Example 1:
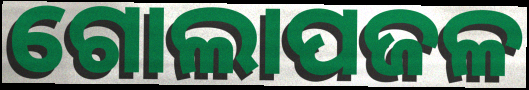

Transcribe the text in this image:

ଗୋଲାପଜଳ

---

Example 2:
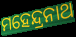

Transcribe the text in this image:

ମହେନ୍ଦ୍ରନାଥ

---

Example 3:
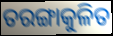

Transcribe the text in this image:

ତରଙ୍ଗାକୁଳିତ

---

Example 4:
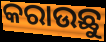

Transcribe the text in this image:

କରାଉଛୁ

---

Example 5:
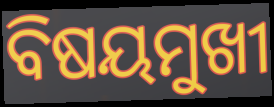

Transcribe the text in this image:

ବିଷୟମୁଖୀ